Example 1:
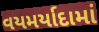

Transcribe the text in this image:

વયમર્યાદામાં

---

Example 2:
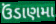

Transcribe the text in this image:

ઉંડાણમા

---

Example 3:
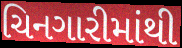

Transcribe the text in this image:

ચિનગારીમાંથી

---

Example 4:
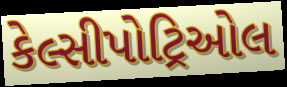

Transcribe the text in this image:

કેલ્સીપોટ્રિઓલ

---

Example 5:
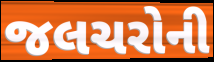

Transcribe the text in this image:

જલચરોની